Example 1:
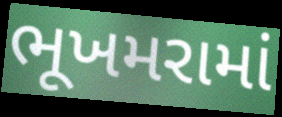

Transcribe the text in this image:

ભૂખમરામાં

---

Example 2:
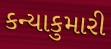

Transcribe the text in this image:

કન્યાકુમારી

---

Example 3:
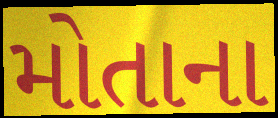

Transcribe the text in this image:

મોતાના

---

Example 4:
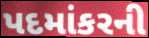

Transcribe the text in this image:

પદમાંકરની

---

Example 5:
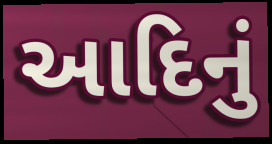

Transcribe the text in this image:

આદિનું